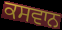
ਕਸਵਾਨ